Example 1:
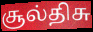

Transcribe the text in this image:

சூல்திசு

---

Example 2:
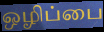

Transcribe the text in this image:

ஒழிப்பை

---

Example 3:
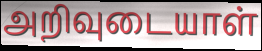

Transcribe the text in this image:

அறிவுடையாள்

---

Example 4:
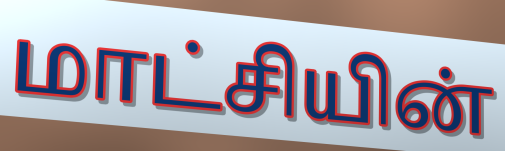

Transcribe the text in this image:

மாட்சியின்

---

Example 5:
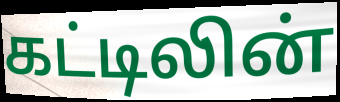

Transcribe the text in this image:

கட்டிலின்